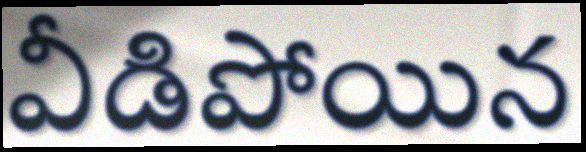
వీడిపోయిన